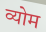
व्योम